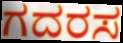
ಗದರಸ